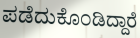
ಪಡೆದುಕೊಂಡಿದ್ದಾರೆ